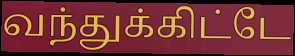
வந்துக்கிட்டே